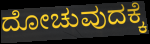
ದೋಚುವುದಕ್ಕೆ